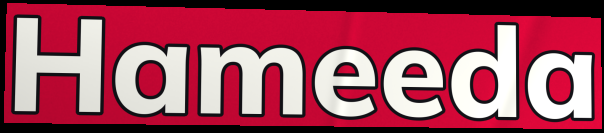
Hameeda